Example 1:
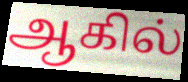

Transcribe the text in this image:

ஆகில்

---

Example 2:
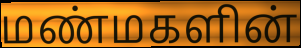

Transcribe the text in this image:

மண்மகளின்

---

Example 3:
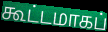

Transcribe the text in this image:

கூட்டமாகப்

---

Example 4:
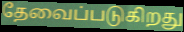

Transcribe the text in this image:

தேவைப்படுகிறது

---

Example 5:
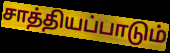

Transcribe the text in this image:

சாத்தியப்பாடும்